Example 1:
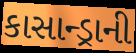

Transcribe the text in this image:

કાસાન્ડ્રાની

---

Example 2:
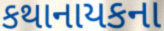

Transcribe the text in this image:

કથાનાયકના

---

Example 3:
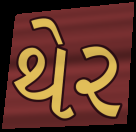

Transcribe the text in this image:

થેર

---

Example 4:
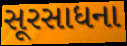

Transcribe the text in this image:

સૂરસાધના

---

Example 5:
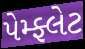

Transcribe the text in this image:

પેમ્ફ્લેટ